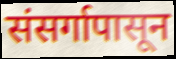
संसर्गापासून